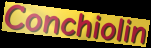
Conchiolin